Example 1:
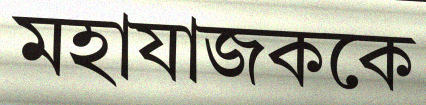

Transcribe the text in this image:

মহাযাজককে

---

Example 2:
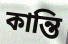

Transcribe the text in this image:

কান্তি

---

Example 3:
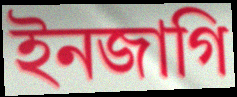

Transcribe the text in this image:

ইনজাগি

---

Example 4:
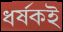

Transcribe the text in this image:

ধর্ষকই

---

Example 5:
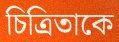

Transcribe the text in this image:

চিত্রিতাকে